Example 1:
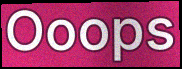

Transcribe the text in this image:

Ooops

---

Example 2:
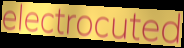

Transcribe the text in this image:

electrocuted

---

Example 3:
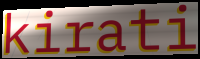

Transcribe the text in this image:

kirati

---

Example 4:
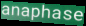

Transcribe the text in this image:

anaphase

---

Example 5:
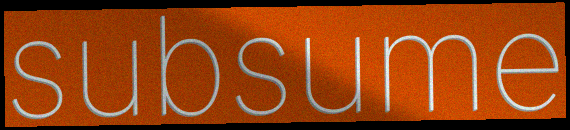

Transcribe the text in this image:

subsume